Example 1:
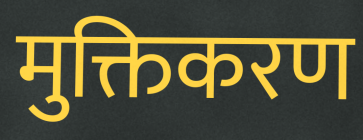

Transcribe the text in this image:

मुक्तिकरण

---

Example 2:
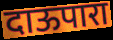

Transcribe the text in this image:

दाऊपारा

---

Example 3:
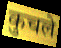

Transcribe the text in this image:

कुचले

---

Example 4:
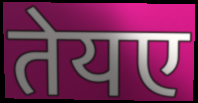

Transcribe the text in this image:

तेयए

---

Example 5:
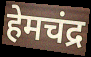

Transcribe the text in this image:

हेमचंद्र